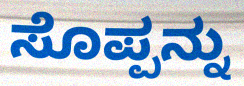
ಸೊಪ್ಪನ್ನು